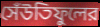
সেঁউতিফুলের